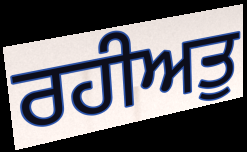
ਰਹੀਅਤੁ